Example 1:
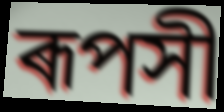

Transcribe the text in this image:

ৰূপসী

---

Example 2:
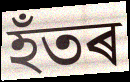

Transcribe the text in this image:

হঁতৰ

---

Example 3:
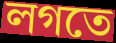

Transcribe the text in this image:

লগতে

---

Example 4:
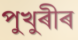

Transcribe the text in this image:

পুখুৰীৰ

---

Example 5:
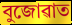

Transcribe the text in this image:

বুজোৱাত